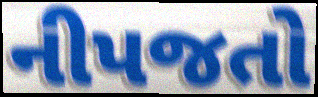
નીપજતો